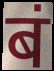
बं